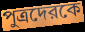
পুত্রদেরকে